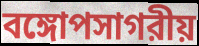
বঙ্গোপসাগরীয়